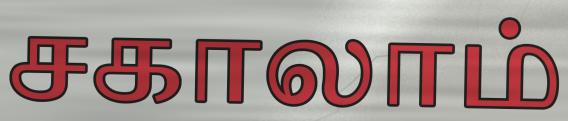
சகாலாம்